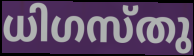
ധിഗസ്തു